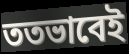
ততভাবেই